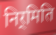
निर्मिति